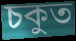
চকুত